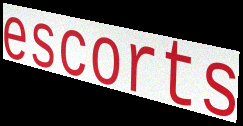
escorts